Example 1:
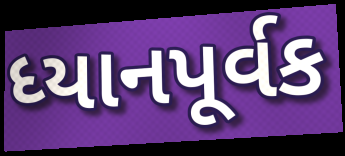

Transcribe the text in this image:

ધ્યાનપૂર્વક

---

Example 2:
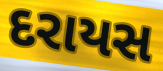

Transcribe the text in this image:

દરાયસ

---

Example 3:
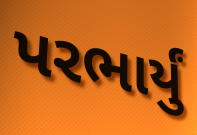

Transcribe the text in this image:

પરભાર્યું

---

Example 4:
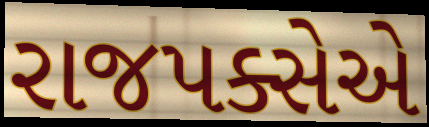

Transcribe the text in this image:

રાજપક્સેએ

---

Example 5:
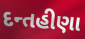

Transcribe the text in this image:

દન્તહીણા